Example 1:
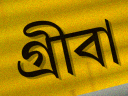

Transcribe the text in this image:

গ্রীবা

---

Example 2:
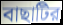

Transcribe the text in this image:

বাছাটির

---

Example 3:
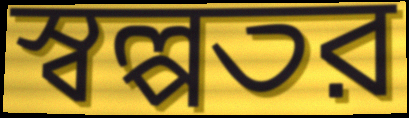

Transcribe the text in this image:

স্বল্পতর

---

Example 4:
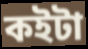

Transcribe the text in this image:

কইটা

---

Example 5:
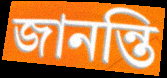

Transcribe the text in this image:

জানন্তি